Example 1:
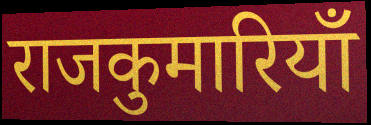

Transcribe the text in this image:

राजकुमारियाँ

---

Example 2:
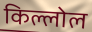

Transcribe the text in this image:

किल्लोल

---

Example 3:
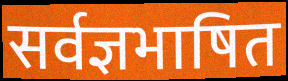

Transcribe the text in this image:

सर्वज्ञभाषित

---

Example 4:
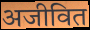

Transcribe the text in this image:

अजीवित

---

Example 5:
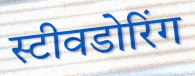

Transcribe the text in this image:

स्टीवडोरिंग